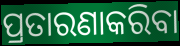
ପ୍ରତାରଣାକରିବା